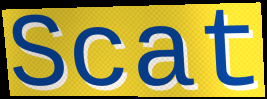
Scat